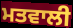
ਮਤਵਾਲੀ